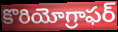
కొరియోగ్రాఫర్